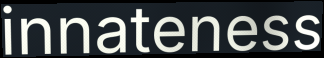
innateness